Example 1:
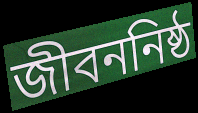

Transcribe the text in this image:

জীবননিষ্ঠ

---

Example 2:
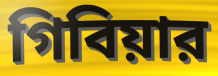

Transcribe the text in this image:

গিবিয়ার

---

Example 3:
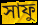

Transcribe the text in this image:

সাফু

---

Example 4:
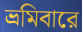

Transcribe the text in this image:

ভ্রমিবারে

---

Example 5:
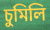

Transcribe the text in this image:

চুমিলি